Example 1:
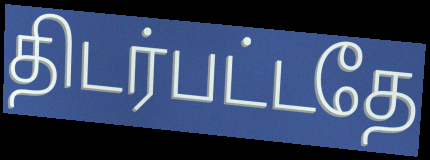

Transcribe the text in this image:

திடர்பட்டதே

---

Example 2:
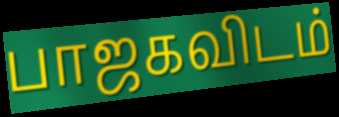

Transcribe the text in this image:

பாஜகவிடம்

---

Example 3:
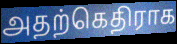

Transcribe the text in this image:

அதற்கெதிராக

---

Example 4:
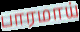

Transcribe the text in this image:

பாரமாய்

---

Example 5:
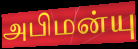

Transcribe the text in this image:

அபிமன்யு